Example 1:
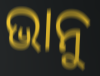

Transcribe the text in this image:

ଭାନୁ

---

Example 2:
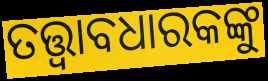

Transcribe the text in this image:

ତତ୍ତ୍ଵାବଧାରକଙ୍କୁ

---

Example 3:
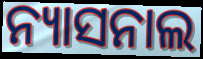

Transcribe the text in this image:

ନ୍ୟାସନାଲ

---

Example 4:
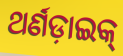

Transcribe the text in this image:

ଥର୍ଣଡ଼ାଇକ୍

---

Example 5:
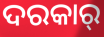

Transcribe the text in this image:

ଦରକାର୍